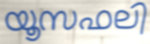
യൂസഫലി